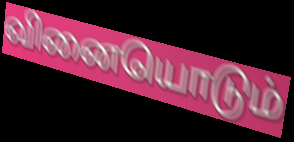
வினையொடும்